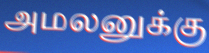
அமலனுக்கு